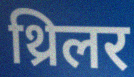
थ्रिलर